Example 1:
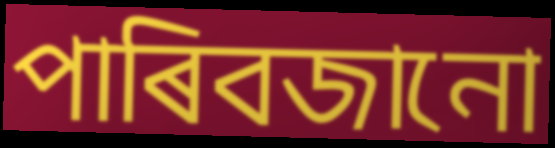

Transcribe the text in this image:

পাৰিবজানো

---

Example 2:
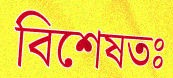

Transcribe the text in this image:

বিশেষতঃ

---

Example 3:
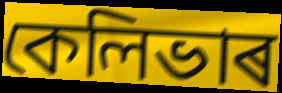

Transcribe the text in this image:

কেলিভাৰ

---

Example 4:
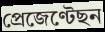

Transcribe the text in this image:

প্ৰেজেণ্টেছন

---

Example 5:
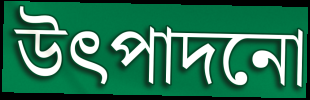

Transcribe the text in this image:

উৎপাদনো